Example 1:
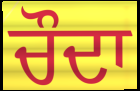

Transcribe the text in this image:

ਚੌਦਾ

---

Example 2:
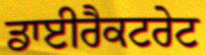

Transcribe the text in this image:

ਡਾਈਰੈਕਟਰੇਟ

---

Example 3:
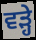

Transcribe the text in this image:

ਵੜ੍ਹੇ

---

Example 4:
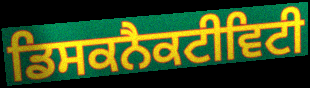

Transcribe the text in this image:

ਡਿਸਕਨੈਕਟੀਵਿਟੀ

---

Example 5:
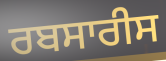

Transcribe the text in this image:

ਰਬਸਾਰੀਸ